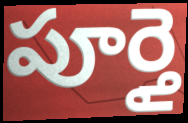
పూర్తై